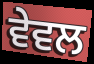
ਵੇਵਲ